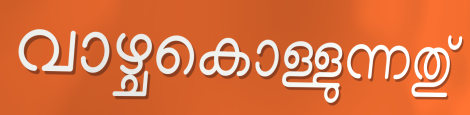
വാഴ്ചകൊള്ളുന്നതു്